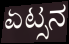
ಏಟ್ಸನ